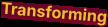
Transforming